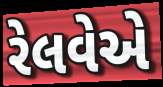
રેલવેએ